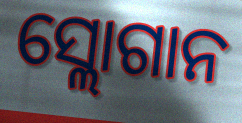
ସ୍ଲୋଗାନ